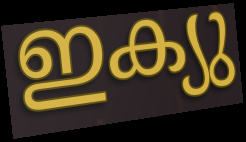
ഇക്യു